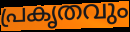
പ്രകൃതവും